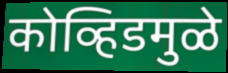
कोव्हिडमुळे